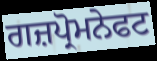
ਗਜ਼ਪ੍ਰੋਮਨੇਫਟ